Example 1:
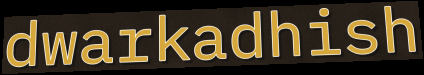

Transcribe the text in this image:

dwarkadhish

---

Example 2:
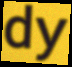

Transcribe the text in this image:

dy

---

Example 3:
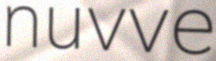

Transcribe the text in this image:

nuvve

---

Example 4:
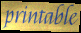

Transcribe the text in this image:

printable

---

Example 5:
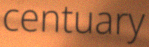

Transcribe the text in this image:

centuary